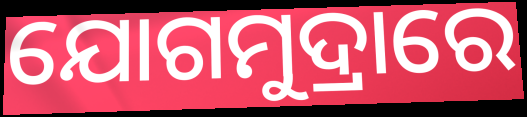
ଯୋଗମୁଦ୍ରାରେ